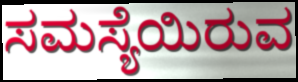
ಸಮಸ್ಯೆಯಿರುವ